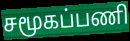
சமூகப்பணி